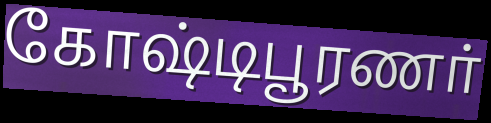
கோஷ்டிபூரணர்